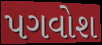
પગવોશ